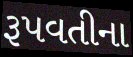
રૂપવતીના